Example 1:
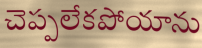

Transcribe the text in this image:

చెప్పలేకపోయాను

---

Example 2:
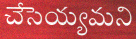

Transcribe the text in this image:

చేసెయ్యమని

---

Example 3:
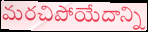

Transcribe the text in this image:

మరచిపోయేదాన్ని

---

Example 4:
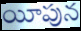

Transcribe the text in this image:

యీపున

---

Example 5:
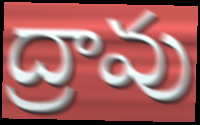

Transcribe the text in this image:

ద్రావు